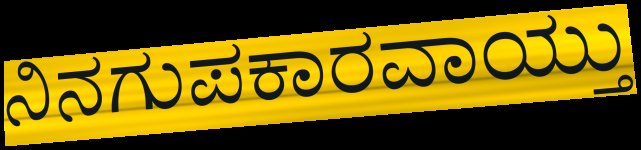
ನಿನಗುಪಕಾರವಾಯ್ತು